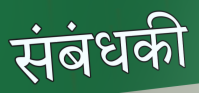
संबंधकी